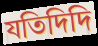
যতিদিদি